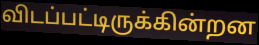
விடப்பட்டிருக்கின்றன